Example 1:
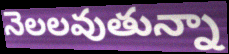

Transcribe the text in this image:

నెలలవుతున్నా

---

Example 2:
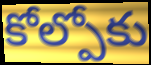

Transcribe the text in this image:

కోల్పోకు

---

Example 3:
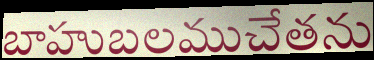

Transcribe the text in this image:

బాహుబలముచేతను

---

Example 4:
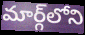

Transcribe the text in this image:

మార్గ్‌లోని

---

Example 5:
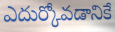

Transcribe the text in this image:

ఎదుర్కోవడానికే